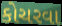
કોચરવા